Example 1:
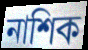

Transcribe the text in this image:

নাশিক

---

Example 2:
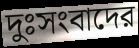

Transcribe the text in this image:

দুঃসংবাদের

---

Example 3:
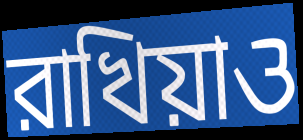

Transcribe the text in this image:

রাখিয়াও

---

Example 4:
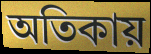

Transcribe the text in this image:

অতিকায়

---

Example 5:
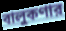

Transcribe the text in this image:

বালুকণার